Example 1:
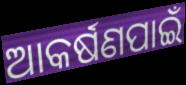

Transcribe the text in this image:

ଆକର୍ଷଣପାଇଁ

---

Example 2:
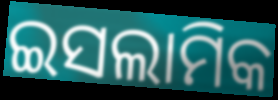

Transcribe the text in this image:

ଇସଲାମିକ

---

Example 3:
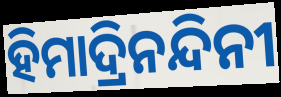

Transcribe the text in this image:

ହିମାଦ୍ରିନନ୍ଦିନୀ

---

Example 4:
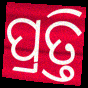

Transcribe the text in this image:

ପ୍ରତ୍ତି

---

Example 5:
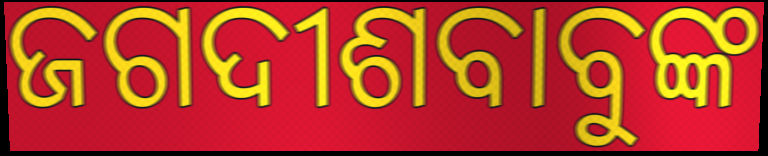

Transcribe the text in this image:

ଜଗଦୀଶବାବୁଙ୍କ